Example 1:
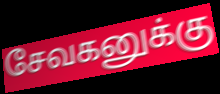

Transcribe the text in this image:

சேவகனுக்கு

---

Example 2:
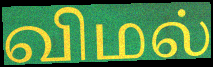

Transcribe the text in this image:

விமல்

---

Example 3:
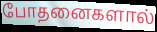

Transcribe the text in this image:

போதனைகளால்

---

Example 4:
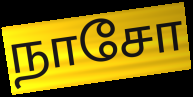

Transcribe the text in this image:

நாசோ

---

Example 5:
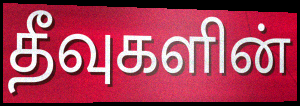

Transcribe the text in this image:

தீவுகளின்